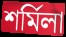
শর্মিলা